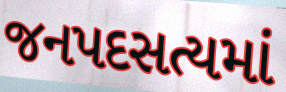
જનપદસત્યમાં